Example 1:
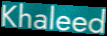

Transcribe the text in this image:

Khaleed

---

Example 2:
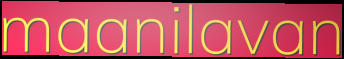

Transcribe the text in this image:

maanilavan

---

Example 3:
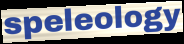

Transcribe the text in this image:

speleology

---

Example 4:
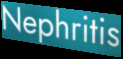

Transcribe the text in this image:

Nephritis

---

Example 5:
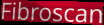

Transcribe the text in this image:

Fibroscan